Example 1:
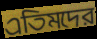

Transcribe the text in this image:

এতিমদের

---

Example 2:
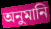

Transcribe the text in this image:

অনুমানি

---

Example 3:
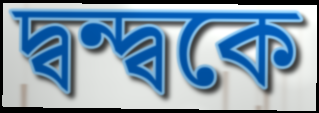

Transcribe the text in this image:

দ্বন্দ্বকে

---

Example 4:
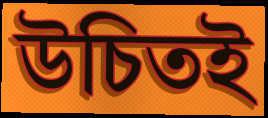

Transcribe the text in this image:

উচিতই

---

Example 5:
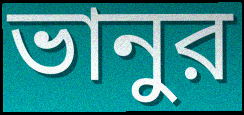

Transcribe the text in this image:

ভানুর